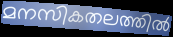
മനസികതലത്തിൽ